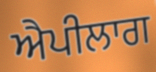
ਐਪੀਲਾਗ